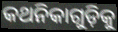
କଥନିକାଗୁଡ଼ିକୁ